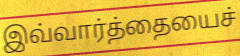
இவ்வார்த்தையைச்